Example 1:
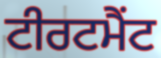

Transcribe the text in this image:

ਟੀਰਟਮੈਂਟ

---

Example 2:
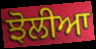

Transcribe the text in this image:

ਝੋਲੀਆ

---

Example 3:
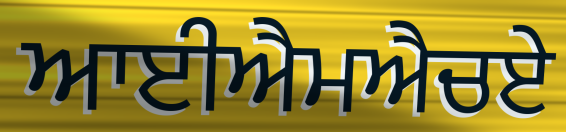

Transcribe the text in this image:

ਆਈਐਮਐਚਏ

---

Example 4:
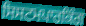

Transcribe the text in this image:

ਸਿਸਟਮਪਾਰਕਿੰਗ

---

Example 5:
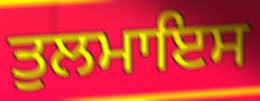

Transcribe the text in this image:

ਤੁਲਮਾਇਸ